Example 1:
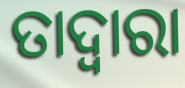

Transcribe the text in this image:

ତାଦ୍ଵାରା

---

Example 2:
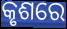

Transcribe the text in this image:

କୃଶରେ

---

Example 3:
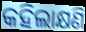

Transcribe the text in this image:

କହିଲାକ୍ଷଣି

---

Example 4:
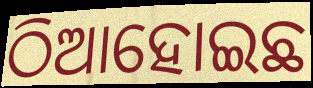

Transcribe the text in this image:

ଠିଆହୋଇଛ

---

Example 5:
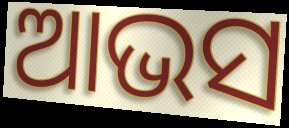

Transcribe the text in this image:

ଆଭସ